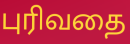
புரிவதை